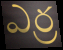
ఎర్ర